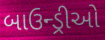
બાઉન્ડ્રીઓ